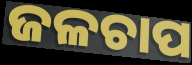
ଜଳଚାପ